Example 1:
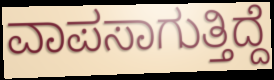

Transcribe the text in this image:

ವಾಪಸಾಗುತ್ತಿದ್ದೆ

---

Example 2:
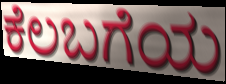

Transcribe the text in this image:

ಕೆಲಬಗೆಯ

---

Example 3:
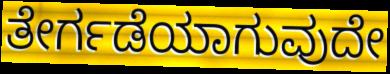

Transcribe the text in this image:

ತೇರ್ಗಡೆಯಾಗುವುದೇ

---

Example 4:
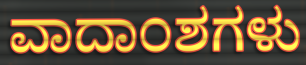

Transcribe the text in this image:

ವಾದಾಂಶಗಳು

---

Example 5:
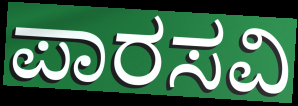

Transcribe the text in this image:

ಪಾರಸವಿ